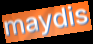
maydis